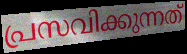
പ്രസവിക്കുന്നത്